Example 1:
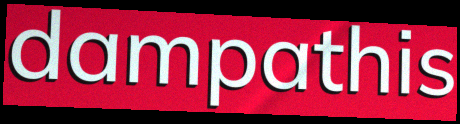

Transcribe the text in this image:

dampathis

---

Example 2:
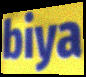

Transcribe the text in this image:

biya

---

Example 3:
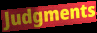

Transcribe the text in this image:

Judgments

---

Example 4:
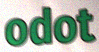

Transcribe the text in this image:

odot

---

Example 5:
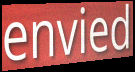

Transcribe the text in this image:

envied